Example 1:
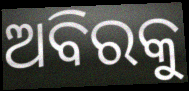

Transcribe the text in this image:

ଅବିରକୁ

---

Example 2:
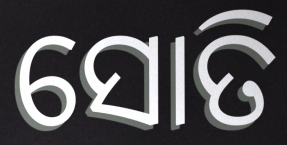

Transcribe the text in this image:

ସୋତି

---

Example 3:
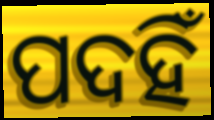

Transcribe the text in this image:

ପଦହିଁ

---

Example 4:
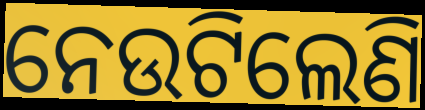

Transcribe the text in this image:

ନେଉଟିଲେଣି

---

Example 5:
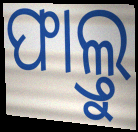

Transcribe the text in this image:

ଫାଲ୍ତୁ